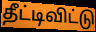
தீட்டிவிட்டு